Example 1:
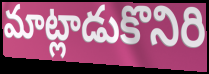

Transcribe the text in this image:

మాట్లాడుకొనిరి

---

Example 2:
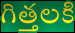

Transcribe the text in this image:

గిత్తలకి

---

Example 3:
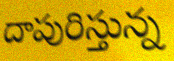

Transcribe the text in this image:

దాపురిస్తున్న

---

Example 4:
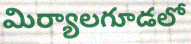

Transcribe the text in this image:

మిర్యాలగూడలో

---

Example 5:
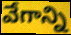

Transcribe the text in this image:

వేగాన్ని